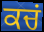
ਕਚਂ